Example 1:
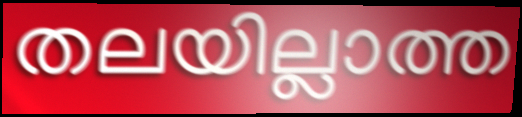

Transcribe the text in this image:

തലയില്ലാത്ത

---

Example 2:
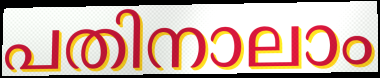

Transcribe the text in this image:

പതിനാലാം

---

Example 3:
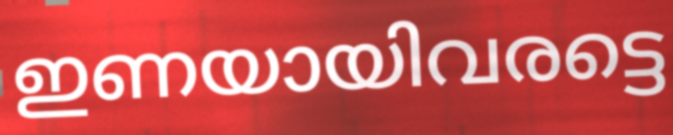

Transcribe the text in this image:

ഇണയായിവരട്ടെ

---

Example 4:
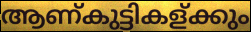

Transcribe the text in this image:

ആണ്കുട്ടികള്ക്കും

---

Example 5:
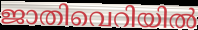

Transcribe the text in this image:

ജാതിവെറിയിൽ